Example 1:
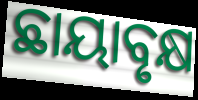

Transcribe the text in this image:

ଛାୟାବୃକ୍ଷ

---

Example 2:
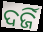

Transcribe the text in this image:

ଦର୍ଜି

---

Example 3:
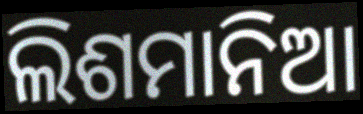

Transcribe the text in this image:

ଲିଶମାନିଆ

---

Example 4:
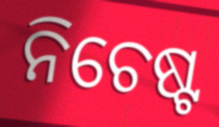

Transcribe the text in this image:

ନିଚେଷ୍ଟ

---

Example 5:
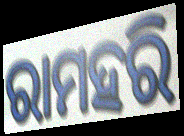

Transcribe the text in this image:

ରାମହରି